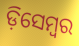
ଡ଼ିସେମ୍ୱର